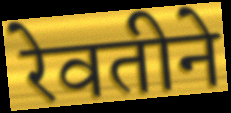
रेवतीने